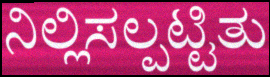
ನಿಲ್ಲಿಸಲ್ಪಟ್ಟಿತು